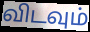
விடவும்